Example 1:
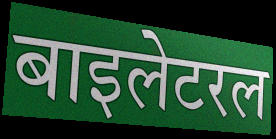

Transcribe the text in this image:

बाइलेटरल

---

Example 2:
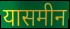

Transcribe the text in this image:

यासमीन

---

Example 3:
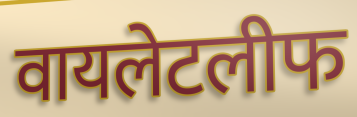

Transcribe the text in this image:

वायलेटलीफ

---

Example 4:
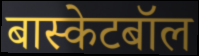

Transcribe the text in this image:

बास्केटबॉल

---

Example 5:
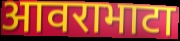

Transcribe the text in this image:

आवराभाटा